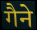
गैने